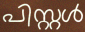
പിസ്റ്റൾ